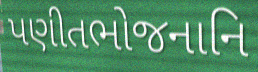
પણીતભોજનાનિ